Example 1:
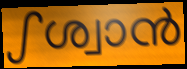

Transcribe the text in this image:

ഽശ്വാൻ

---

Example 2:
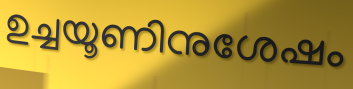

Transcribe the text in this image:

ഉച്ചയൂണിനുശേഷം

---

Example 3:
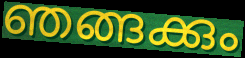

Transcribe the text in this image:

ഞങ്ങക്കും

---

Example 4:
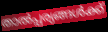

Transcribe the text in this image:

താൽപ്പര്യങ്ങൾക്ക്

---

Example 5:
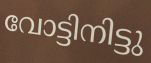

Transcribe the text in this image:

വോട്ടിനിട്ടു